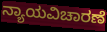
ನ್ಯಾಯವಿಚಾರಣೆ